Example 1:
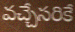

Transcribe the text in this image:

వచ్చేసరికే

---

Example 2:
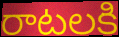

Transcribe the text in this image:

రాటలకి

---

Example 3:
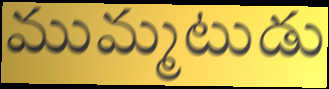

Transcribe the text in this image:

ముమ్మటుడు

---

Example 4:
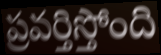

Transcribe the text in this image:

ప్రవర్తిస్తోంది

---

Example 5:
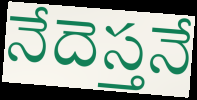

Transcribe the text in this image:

నేదెస్తనే